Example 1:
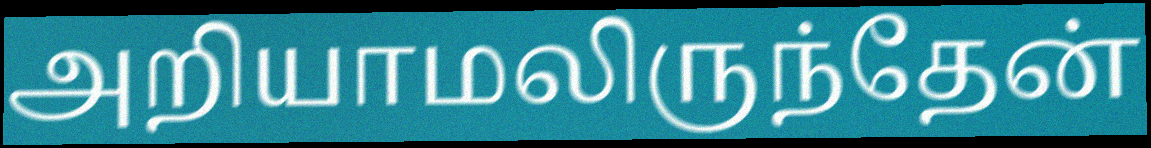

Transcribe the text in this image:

அறியாமலிருந்தேன்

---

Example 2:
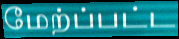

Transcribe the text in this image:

மேற்ப்பட்ட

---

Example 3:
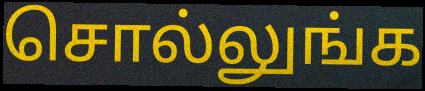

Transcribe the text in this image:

சொல்லுங்க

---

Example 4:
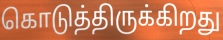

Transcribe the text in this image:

கொடுத்திருக்கிறது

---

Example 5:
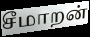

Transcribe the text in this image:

சீமாறன்